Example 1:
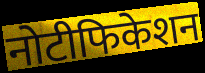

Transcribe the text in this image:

नोटीफिकेशन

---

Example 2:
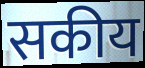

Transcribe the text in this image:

सकीय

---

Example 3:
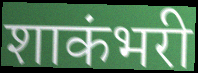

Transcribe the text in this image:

शाकंभरी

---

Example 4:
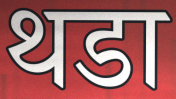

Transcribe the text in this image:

थडा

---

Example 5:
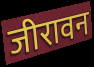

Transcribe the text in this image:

जीरावन